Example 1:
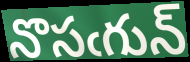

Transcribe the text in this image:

నొసఁగున్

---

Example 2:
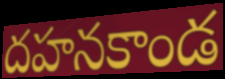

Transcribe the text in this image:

దహనకాండ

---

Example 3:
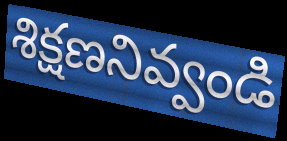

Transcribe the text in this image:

శిక్షణనివ్వండి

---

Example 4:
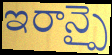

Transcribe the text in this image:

ఇరాన్పై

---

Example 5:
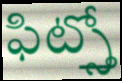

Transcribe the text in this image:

ఫిట్స్తో